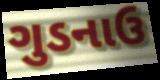
ગુડનાઉ